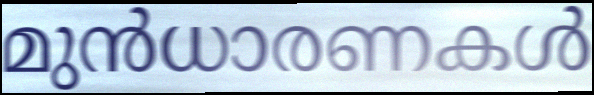
മുൻധാരണകൾ